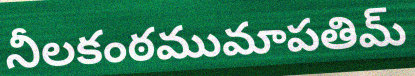
నీలకంఠముమాపతిమ్